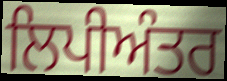
ਲਿਪੀਅੰਤਰ